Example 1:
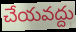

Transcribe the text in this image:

చేయవద్దు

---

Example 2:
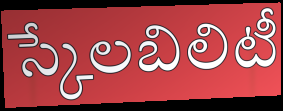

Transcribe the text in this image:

స్కేలబిలిటీ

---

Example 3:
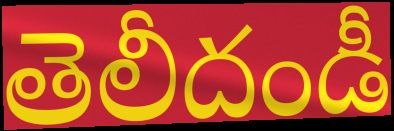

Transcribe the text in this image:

తెలీదండీ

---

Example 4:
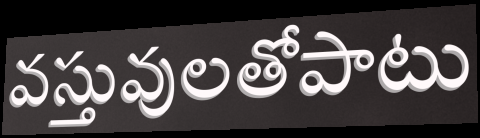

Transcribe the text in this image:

వస్తువులతోపాటు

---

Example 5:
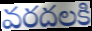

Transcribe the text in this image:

వరదలకి